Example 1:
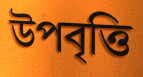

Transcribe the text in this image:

উপবৃত্তি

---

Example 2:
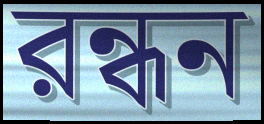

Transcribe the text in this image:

রন্ধন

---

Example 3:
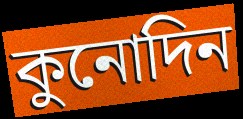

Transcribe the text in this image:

কুনোদিন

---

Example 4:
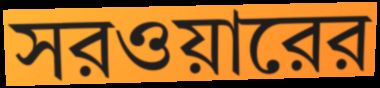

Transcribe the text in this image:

সরওয়ারের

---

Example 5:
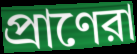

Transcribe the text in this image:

প্রাণেরা